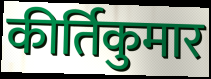
कीर्तिकुमार